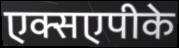
एक्सएपीके